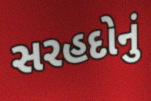
સરહદોનું